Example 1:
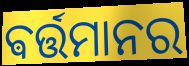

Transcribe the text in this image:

ଵର୍ତ୍ତମାନର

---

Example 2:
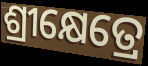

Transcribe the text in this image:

ଶ୍ରୀକ୍ଷେତ୍ରେ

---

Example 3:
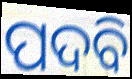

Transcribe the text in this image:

ପଦବି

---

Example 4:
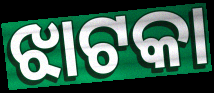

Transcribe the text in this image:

ଝାଟକା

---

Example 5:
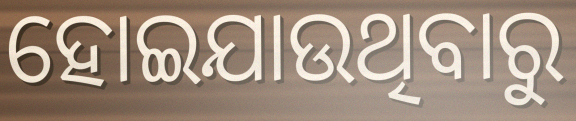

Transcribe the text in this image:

ହୋଇଯାଉଥିବାରୁ